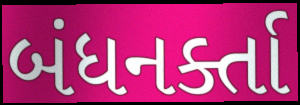
બંધનર્ક્તા